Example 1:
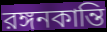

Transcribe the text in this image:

রঙ্গনকান্তি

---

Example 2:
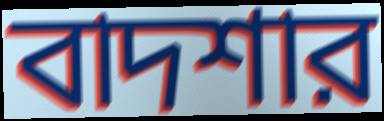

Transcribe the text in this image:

বাদশার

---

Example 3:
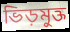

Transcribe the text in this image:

ভিড়মুক্ত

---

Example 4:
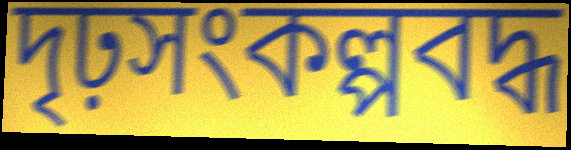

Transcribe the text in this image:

দৃঢ়সংকল্পবদ্ধ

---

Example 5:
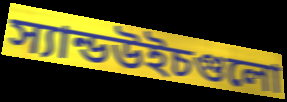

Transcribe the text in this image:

স্যান্ডউইচগুলো